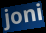
joni